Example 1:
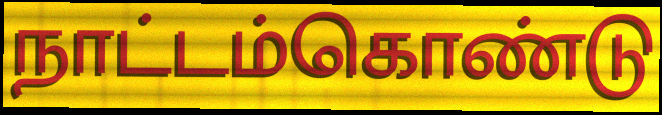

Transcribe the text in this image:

நாட்டம்கொண்டு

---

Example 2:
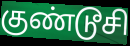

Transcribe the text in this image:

குண்டூசி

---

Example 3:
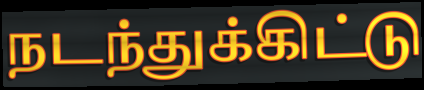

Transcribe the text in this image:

நடந்துக்கிட்டு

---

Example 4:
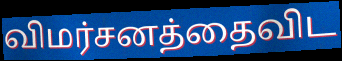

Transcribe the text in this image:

விமர்சனத்தைவிட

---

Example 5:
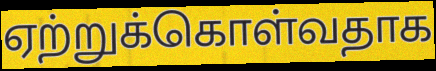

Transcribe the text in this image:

ஏற்றுக்கொள்வதாக